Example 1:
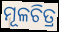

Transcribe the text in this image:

ମୂଳଚିତ୍ର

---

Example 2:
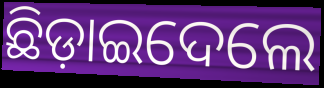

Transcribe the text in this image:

ଛିଡ଼ାଇଦେଲେ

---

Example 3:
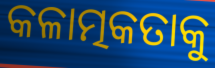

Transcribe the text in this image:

କଳାତ୍ମକତାକୁ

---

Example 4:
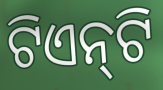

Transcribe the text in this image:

ଟିଏନ୍‌ଟି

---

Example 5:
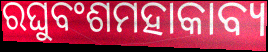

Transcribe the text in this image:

ରଘୁବଂଶମହାକାବ୍ୟ